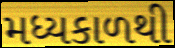
મધ્યકાળથી